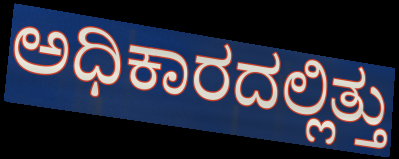
ಅಧಿಕಾರದಲ್ಲಿತ್ತು